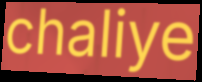
chaliye